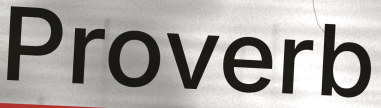
Proverb